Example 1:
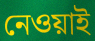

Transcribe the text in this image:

নেওয়াই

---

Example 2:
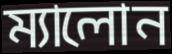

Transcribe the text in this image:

ম্যালোন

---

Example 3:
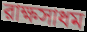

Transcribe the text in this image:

রাক্ষসাধম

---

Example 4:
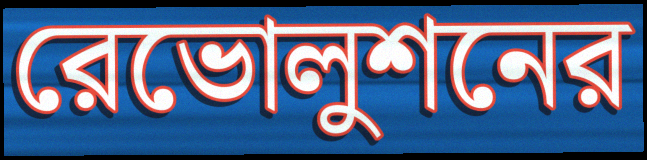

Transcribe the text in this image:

রেভোলুশনের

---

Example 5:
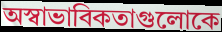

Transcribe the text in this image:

অস্বাভাবিকতাগুলোকে